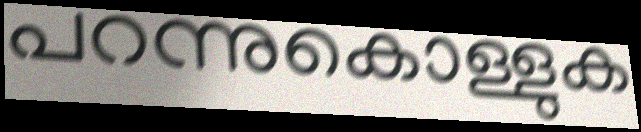
പറന്നുകൊള്ളുക